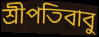
শ্রীপতিবাবু